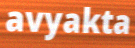
avyakta